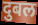
दुबल